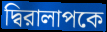
দ্বিরালাপকে